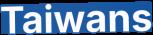
Taiwans